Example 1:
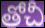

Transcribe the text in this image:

తోచీ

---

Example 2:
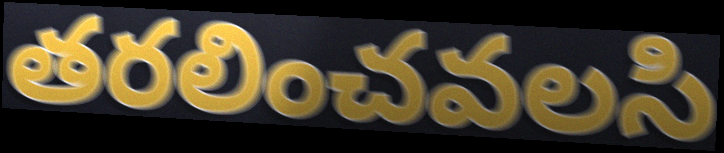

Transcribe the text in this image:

తరలించవలసి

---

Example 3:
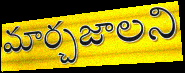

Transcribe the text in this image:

మార్చజాలని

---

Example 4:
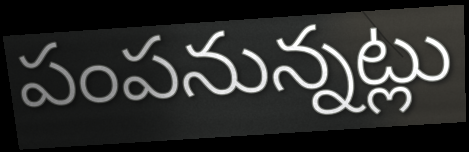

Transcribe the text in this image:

పంపనున్నట్లు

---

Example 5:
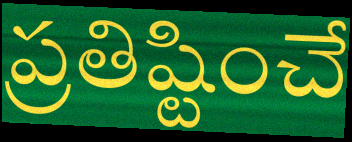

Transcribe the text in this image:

ప్రతిష్టించే